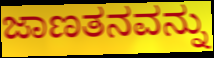
ಜಾಣತನವನ್ನು